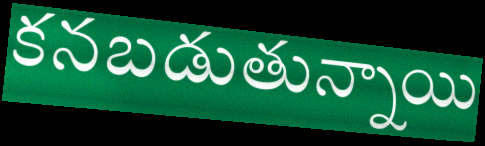
కనబడుతున్నాయి